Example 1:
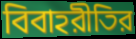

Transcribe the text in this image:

বিবাহরীতির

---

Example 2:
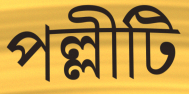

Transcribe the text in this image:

পল্লীটি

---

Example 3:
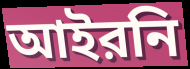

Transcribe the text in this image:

আইরনি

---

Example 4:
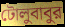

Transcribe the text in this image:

টোলুবাবুর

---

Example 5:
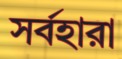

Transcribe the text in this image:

সর্বহারা